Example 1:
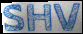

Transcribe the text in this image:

SHV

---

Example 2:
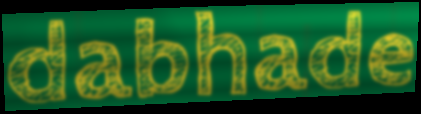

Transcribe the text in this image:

dabhade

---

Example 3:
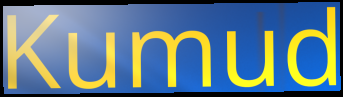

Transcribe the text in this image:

Kumud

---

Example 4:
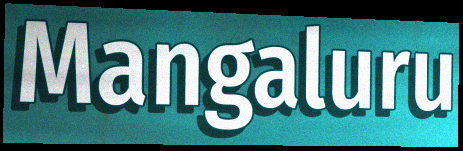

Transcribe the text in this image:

Mangaluru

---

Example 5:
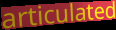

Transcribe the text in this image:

articulated